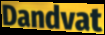
Dandvat